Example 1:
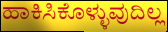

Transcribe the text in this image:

ಹಾಕಿಸಿಕೊಳ್ಳುವುದಿಲ್ಲ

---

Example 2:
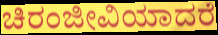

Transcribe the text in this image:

ಚಿರಂಜೀವಿಯಾದರೆ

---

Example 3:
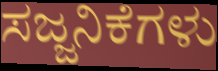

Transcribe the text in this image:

ಸಜ್ಜನಿಕೆಗಳು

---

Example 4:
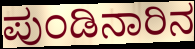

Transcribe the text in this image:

ಪುಂಡಿನಾರಿನ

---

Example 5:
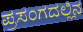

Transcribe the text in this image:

ಪ್ರಸಂಗದಲ್ಲಿನ